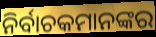
ନିର୍ବାଚକମାନଙ୍କର